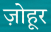
ज़ोहूर